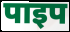
पाइप